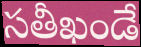
సతీఖండే